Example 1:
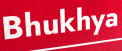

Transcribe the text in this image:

Bhukhya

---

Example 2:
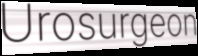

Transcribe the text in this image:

Urosurgeon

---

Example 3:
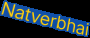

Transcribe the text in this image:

Natverbhai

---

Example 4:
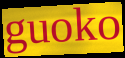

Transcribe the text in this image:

guoko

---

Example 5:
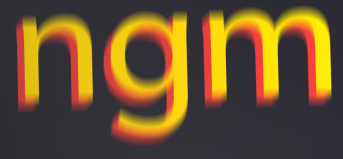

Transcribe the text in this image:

ngm